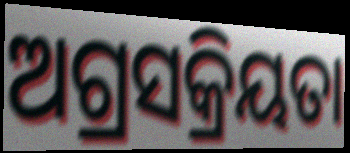
ଅଗ୍ରସକ୍ରିୟତା